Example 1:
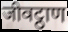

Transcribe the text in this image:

जीवट्ठाण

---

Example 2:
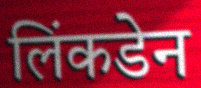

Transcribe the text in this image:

लिंकडेन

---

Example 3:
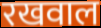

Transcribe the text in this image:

रखवाल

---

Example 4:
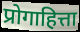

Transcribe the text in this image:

प्रोगाहित्ता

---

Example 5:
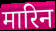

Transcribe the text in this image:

मारिन